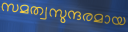
സമത്വസുന്ദരമായ